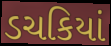
ડચકિયાં